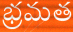
భ్రమత